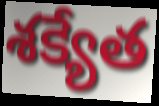
శక్యేత